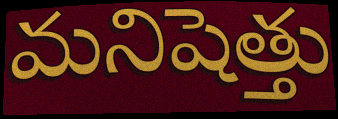
మనిషెత్తు